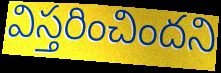
విస్తరించిందని